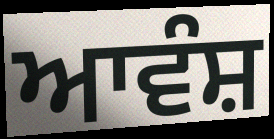
ਆਵੰਸ਼